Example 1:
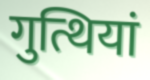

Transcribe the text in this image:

गुत्थियां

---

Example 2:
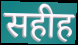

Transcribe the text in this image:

सहीह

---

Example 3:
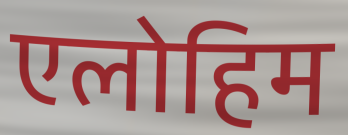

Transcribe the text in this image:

एलोहिम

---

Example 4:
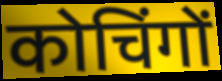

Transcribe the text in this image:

कोचिंगों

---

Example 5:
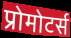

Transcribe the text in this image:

प्रोमोटर्स